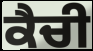
ਕੈਚੀ